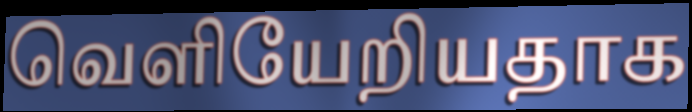
வெளியேறியதாக